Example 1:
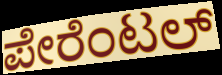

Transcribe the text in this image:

ಪೇರೆಂಟಲ್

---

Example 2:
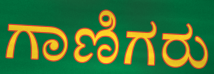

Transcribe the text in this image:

ಗಾಣಿಗರು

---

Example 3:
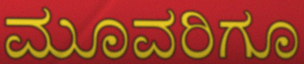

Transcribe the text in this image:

ಮೂವರಿಗೂ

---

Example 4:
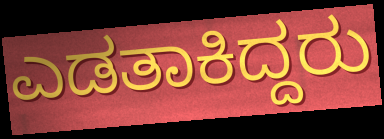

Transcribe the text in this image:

ಎಡತಾಕಿದ್ದರು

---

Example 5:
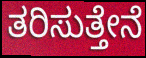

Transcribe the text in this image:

ತರಿಸುತ್ತೇನೆ